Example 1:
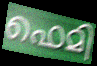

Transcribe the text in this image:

ഫെമി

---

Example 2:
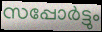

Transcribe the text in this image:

സപ്പോർട്ടും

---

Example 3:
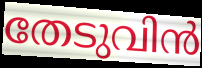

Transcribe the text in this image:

തേടുവിൻ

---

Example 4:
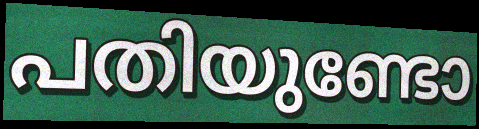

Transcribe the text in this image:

പതിയുണ്ടോ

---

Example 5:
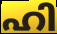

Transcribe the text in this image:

ഹി